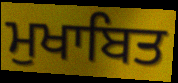
ਮੁਖਾਬਿਤ